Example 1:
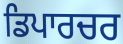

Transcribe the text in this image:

ਡਿਪਾਰਚਰ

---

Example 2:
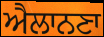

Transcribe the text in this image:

ਐਲਾਨਣਾ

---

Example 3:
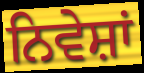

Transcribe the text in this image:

ਨਿਵੇਸ਼ਾਂ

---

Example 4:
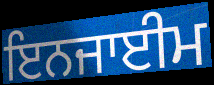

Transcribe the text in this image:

ਇਨਜਾਈਮ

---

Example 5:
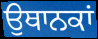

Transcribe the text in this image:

ਉਥਾਨਕਾਂ